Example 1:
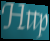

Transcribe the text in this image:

Http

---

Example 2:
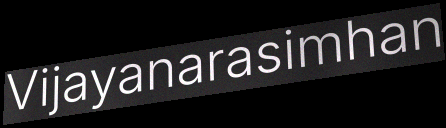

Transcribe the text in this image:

Vijayanarasimhan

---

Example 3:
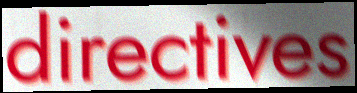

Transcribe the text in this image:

directives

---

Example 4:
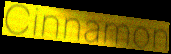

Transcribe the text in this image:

Cinnamon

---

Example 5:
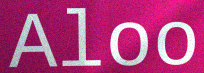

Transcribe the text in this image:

Aloo